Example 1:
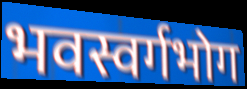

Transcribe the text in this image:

भवस्वर्गभोग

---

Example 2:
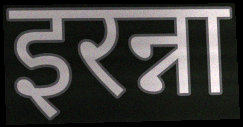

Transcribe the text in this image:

इरन्ना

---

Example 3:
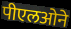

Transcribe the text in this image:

पीएलओने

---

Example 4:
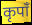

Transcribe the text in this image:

कृपाँ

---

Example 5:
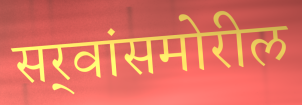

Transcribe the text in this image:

सर्वांसमोरील